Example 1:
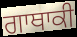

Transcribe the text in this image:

ਗਾਥਾਕੀ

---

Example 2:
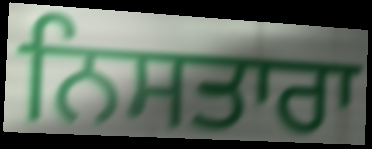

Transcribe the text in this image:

ਨਿਸਤਾਰਾ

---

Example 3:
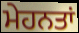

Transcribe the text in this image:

ਮੇਹਨਤਾਂ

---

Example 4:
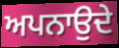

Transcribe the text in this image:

ਅਪਨਾਉਦੇ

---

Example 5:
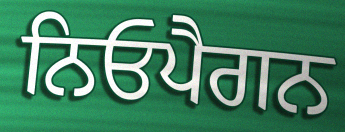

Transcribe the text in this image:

ਨਿਓਪੈਗਨ